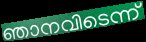
ഞാനവിടെന്ന്